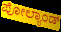
ಪೋಲ್ಯಾಂಡ್